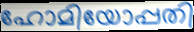
ഹോമിയോപ്പതി